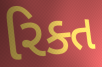
રિક્ત